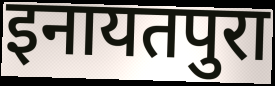
इनायतपुरा